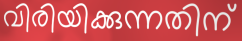
വിരിയിക്കുന്നതിന്